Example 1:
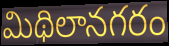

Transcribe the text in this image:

మిథిలానగరం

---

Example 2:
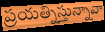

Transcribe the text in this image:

ప్రయత్నిస్తున్నావా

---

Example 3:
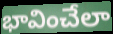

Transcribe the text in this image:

భావించేలా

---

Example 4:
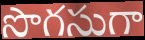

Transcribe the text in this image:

సొగసుగా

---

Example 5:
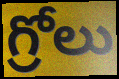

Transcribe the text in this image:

గ్రోలు